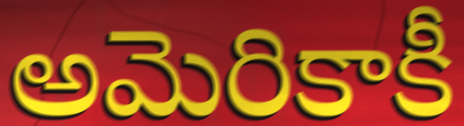
అమెరికాకీ